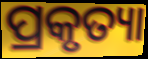
ପ୍ରକୃତ୍ୟା